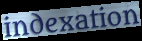
indexation